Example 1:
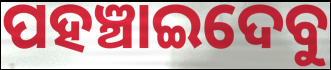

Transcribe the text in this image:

ପହଞ୍ଚାଇଦେବୁ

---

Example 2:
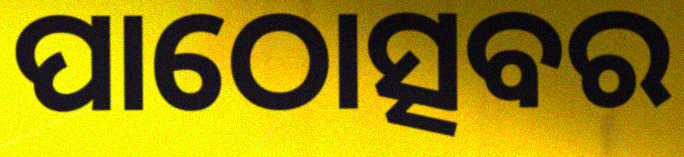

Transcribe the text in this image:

ପାଠୋତ୍ସବର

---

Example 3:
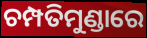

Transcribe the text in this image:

ଚମ୍ପତିମୁଣ୍ଡାରେ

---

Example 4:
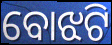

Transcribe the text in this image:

ବୋଝଟି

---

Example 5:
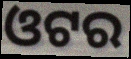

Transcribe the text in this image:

ଓଟର